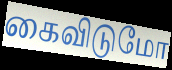
கைவிடுமோ